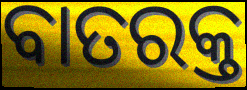
ବାତରକ୍ତ